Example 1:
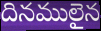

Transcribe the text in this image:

దినములైన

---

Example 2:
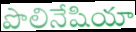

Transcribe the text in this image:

పొలినేషియా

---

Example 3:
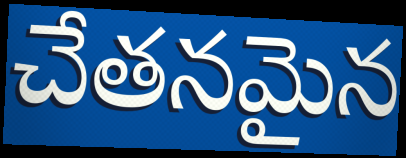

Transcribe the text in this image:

చేతనమైన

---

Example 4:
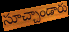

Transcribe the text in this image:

సూచ్చాండారు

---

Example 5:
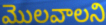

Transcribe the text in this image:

మొలవాలని